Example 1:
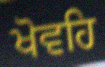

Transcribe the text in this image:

ਖੋਵਹਿ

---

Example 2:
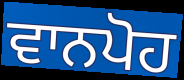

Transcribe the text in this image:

ਵਾਨਪੋਹ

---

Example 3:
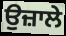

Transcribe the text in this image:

ਉਜ਼ਾਲੇ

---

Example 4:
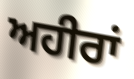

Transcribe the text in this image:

ਅਹੀਰਾਂ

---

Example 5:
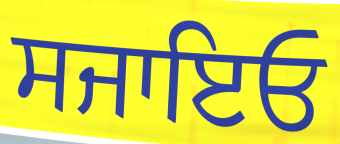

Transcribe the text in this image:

ਸਜਾਇਓ